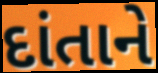
દાંતાને